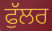
ਫੁੱਲਰ